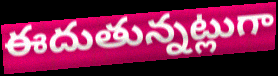
ఈదుతున్నట్లుగా